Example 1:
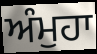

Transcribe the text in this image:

ਅੰਮੁਹਾ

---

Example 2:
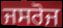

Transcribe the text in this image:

ਜਸਰੋਜ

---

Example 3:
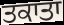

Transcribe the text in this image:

ਤਕਾਤਾ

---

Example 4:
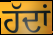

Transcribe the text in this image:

ਹੱਦਾਂ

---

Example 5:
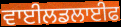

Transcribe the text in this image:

ਵਾਈਲਡਲਾਈਫ